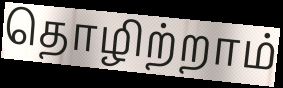
தொழிற்றாம்